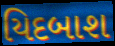
યિદબાશ